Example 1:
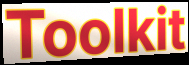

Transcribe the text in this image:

Toolkit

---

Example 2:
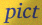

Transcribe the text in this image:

pict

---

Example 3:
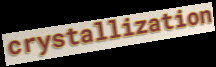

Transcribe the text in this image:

crystallization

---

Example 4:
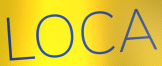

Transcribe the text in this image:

LOCA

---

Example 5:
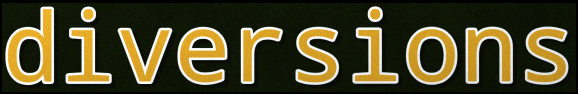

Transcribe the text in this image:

diversions